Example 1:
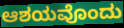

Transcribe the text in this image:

ಆಶಯವೊಂದು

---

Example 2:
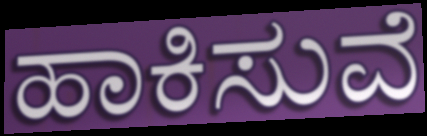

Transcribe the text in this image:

ಹಾಕಿಸುವೆ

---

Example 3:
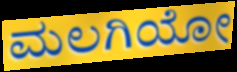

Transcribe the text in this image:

ಮಲಗಿಯೋ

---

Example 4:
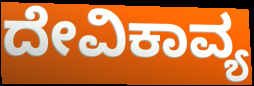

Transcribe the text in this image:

ದೇವಿಕಾವ್ಯ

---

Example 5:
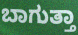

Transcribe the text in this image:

ಬಾಗುತ್ತಾ